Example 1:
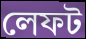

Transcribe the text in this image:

লেফট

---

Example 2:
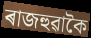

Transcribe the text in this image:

ৰাজহুৱাকৈ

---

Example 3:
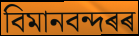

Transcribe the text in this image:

বিমানবন্দৰৰ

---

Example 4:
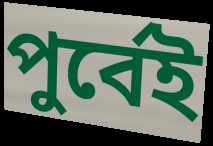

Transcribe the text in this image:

পুৰ্বেই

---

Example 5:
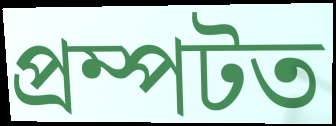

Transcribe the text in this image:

প্ৰম্পটত